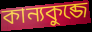
কান্যকুব্জে